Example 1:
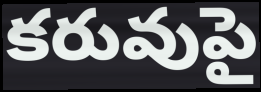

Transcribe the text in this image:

కరువుపై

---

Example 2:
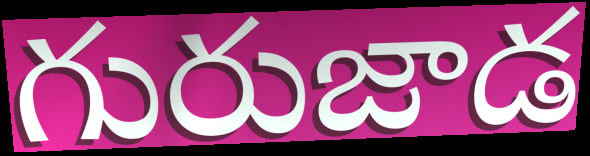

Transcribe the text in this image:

గురుజాడ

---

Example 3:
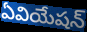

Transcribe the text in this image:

ఏవియేషన్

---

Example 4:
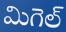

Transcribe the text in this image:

మిగెల్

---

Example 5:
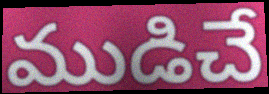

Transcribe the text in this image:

ముడిచే